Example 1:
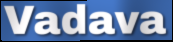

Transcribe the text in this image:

Vadava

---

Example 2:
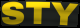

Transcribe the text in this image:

STY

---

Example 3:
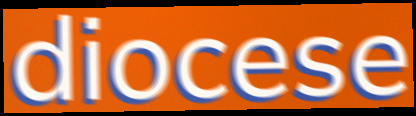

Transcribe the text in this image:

diocese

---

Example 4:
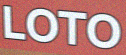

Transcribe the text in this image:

LOTO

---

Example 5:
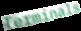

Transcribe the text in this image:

Terminals